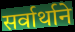
सर्वार्थाने